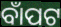
ବାଁପଟ